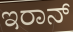
ಇರಾನ್